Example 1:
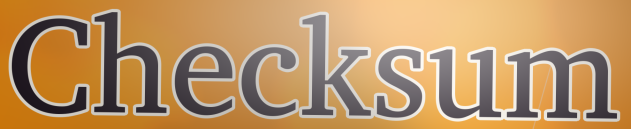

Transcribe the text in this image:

Checksum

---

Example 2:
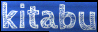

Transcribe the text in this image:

kitabu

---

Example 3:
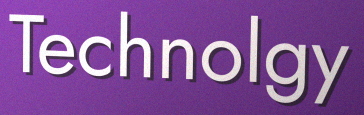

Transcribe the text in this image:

Technolgy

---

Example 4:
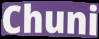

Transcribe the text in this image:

Chuni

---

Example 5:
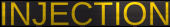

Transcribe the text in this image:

INJECTION